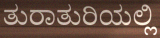
ತುರಾತುರಿಯಲ್ಲಿ